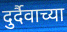
दुर्दैवाच्या